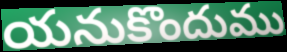
యనుకొందుము